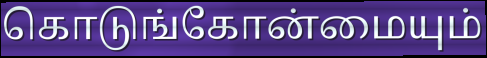
கொடுங்கோன்மையும்